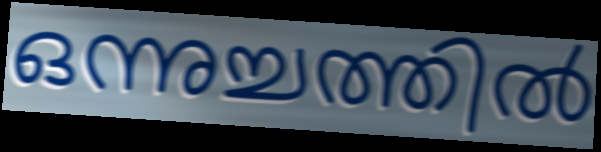
ഒന്നുച്ചത്തിൽ